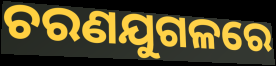
ଚରଣଯୁଗଳରେ